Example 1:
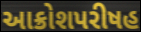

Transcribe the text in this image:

આક્રોશપરીષહ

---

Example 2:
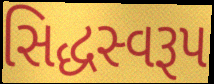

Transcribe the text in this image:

સિદ્ધસ્વરૂપ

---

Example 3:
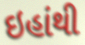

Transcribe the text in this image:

ઇહાંથી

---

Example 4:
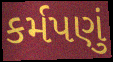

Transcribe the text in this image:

કર્મપણું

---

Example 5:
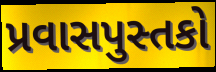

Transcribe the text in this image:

પ્રવાસપુસ્તકો